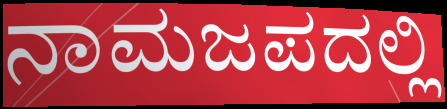
ನಾಮಜಪದಲ್ಲಿ